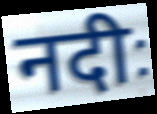
नदीः